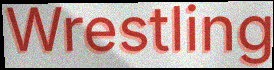
Wrestling